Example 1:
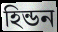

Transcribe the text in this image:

হিন্ডন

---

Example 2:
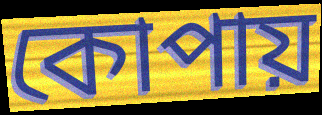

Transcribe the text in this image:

কোপায়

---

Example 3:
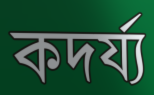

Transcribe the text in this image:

কদর্য্য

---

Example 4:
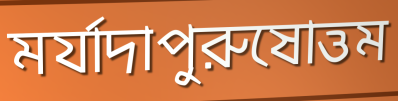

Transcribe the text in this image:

মর্যাদাপুরুষোত্তম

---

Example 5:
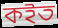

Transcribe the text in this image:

কইত